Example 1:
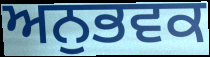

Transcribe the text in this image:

ਅਨੁਭਵਕ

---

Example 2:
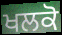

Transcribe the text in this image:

ਖਲਕੋ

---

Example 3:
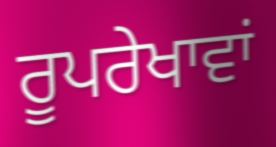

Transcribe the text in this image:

ਰੂਪਰੇਖਾਵਾਂ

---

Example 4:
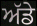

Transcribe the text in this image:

ਅੱਡੇ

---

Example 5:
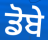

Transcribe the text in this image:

ਡੋਬੇ